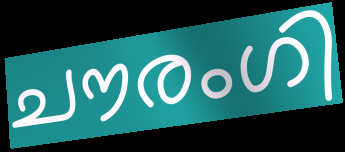
ചൗരംഗി